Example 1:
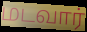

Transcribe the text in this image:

மடவார்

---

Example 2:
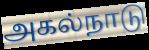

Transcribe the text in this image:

அகல்நாடு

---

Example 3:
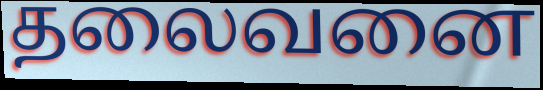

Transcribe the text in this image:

தலைவனை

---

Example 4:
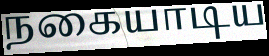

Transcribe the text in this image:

நகையாடிய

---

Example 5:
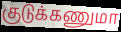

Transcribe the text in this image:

குடுக்கணுமா